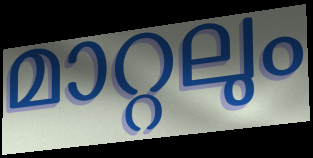
മാറ്റലും